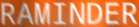
RAMINDER